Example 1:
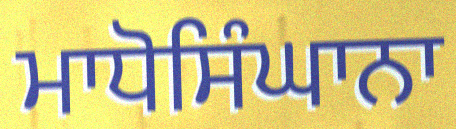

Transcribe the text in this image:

ਮਾਧੋਸਿੰਘਾਨਾ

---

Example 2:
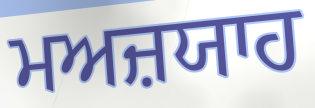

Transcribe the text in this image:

ਮਅਜ਼ਯਾਹ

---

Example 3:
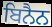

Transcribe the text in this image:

ਬਿਨੈਨ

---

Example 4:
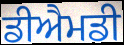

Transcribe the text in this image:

ਡੀਐਮਡੀ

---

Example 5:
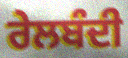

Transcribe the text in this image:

ਰੇਲਬੰਦੀ